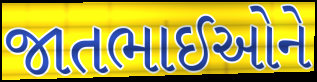
જાતભાઈઓને